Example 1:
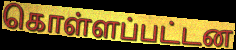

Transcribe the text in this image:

கொள்ளப்பட்டன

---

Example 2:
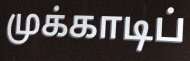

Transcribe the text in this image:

முக்காடிப்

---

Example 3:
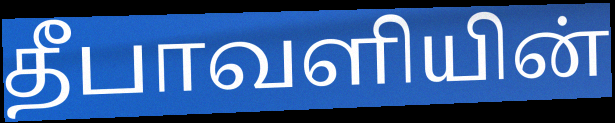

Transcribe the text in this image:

தீபாவளியின்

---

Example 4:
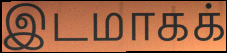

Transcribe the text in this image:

இடமாகக்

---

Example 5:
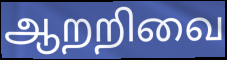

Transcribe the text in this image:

ஆறறிவை